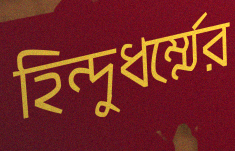
হিন্দুধর্ম্মের